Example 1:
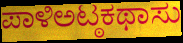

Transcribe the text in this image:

ಪಾಳಿಅಟ್ಠಕಥಾಸು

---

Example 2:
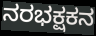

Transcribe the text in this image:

ನರಭಕ್ಷಕನ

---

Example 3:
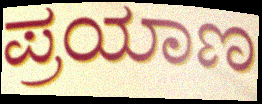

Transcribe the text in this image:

ಪ್ರಯಾಣ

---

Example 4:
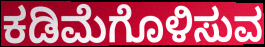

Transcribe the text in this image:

ಕಡಿಮೆಗೊಳಿಸುವ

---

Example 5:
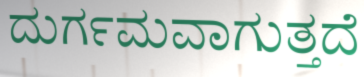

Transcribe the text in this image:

ದುರ್ಗಮವಾಗುತ್ತದೆ